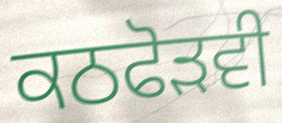
ਕਠਫੋੜਵੀ